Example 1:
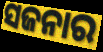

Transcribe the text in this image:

ସଜନାର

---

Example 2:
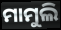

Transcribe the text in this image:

ମାମୁଲି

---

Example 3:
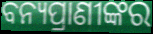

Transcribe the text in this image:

ବନ୍ୟପ୍ରାଣୀଙ୍କର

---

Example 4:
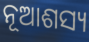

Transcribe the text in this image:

ନୂଆଶସ୍ୟ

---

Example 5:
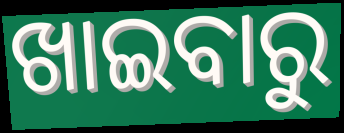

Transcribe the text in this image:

ଖାଇବାରୁ